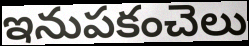
ఇనుపకంచెలు